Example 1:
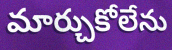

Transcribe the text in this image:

మార్చుకోలేను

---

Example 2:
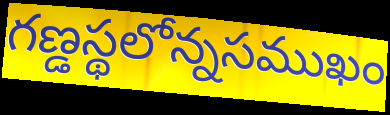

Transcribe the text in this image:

గణ్డస్థలోన్నసముఖం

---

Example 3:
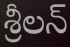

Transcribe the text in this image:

శ్రీలన్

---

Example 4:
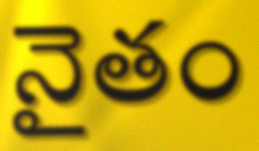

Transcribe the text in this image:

నైతం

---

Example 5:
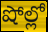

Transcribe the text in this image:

షోల్లో